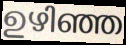
ഉഴിഞ്ഞ